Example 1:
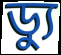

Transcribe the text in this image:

ড্যু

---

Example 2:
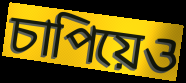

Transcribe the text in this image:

চাপিয়েও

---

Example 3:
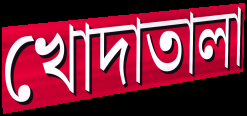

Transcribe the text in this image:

খোদাতালা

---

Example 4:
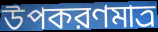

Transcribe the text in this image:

উপকরণমাত্র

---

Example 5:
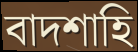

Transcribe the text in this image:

বাদশাহি